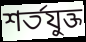
শর্তযুক্ত